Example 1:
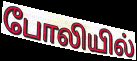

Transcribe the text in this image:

போலியில்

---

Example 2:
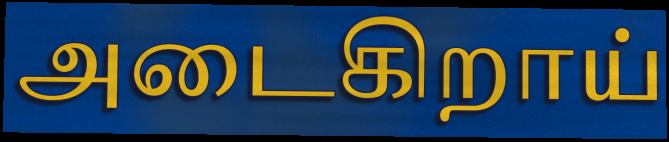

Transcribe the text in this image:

அடைகிறாய்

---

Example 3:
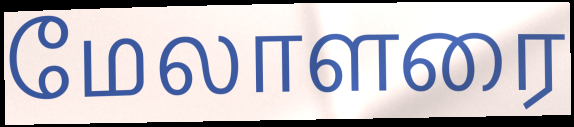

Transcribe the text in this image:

மேலாளரை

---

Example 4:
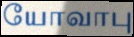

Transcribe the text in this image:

யோவாபு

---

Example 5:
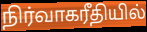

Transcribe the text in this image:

நிர்வாகரீதியில்